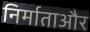
निर्माताऔर